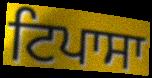
ਟਿਪਾਸਾ